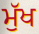
ਮੁੱਖ